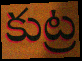
కుట్ర